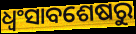
ଧ୍ୱଂସାବଶେଷରୁ